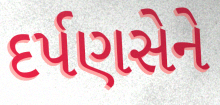
દર્પણસેને